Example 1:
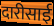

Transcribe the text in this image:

दारीसाई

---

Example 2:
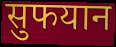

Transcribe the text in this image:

सुफयान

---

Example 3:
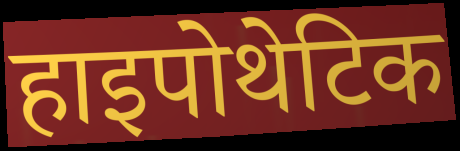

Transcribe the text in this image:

हाइपोथेटिक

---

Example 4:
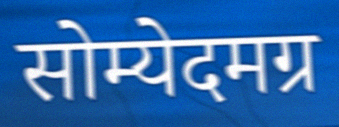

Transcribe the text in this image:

सोम्येदमग्र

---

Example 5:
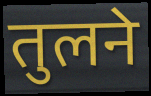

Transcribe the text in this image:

तुलने